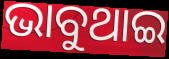
ଭାବୁଥାଇ